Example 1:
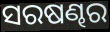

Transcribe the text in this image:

ସରଷଣ୍ଢର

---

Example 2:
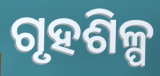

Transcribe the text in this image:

ଗୃହଶିଳ୍ପ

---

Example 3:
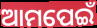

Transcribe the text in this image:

ଆମପେଇଁ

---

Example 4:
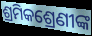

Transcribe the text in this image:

ଶ୍ରମିକଶ୍ରେଣୀଙ୍କ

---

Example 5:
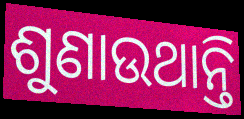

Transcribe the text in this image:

ଶୁଣାଉଥାନ୍ତି